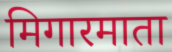
मिगारमाता